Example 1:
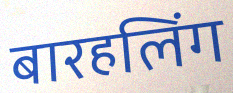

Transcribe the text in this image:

बारहलिंग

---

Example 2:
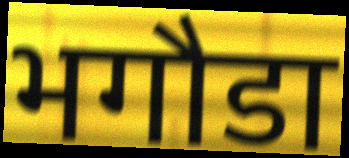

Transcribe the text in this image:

भगौडा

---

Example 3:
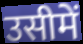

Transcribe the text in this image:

उसीमें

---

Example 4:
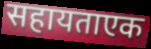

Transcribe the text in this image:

सहायताएक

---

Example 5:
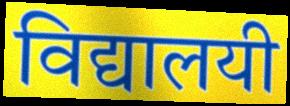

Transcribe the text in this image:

विद्यालयी